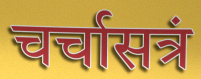
चर्चासत्रं